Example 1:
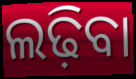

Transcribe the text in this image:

ଲଢ଼ିବା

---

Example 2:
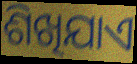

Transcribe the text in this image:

ଶିଖିଯାଏ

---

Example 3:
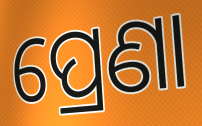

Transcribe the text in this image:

ପ୍ରେଣା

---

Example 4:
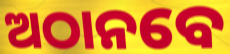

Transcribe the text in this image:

ଅଠାନବେ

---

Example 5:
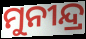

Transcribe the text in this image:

ମୁନୀନ୍ଦ୍ର